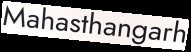
Mahasthangarh